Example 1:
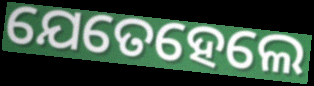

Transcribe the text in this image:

ଯେତେହେଲେ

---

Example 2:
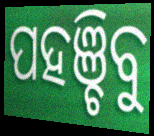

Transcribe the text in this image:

ପହଞ୍ଚିବୁ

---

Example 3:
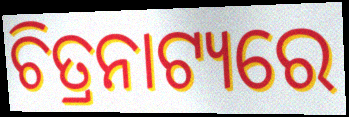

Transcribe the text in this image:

ଚିତ୍ରନାଟ୍ୟରେ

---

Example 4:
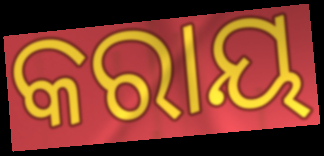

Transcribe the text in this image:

କରାୟ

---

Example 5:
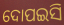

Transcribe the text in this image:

ଦୋପଇସି